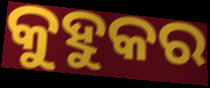
କୁହୁକର